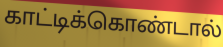
காட்டிக்கொண்டால்